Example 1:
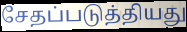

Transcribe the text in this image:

சேதப்படுத்தியது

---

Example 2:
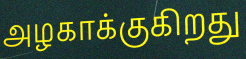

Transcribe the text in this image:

அழகாக்குகிறது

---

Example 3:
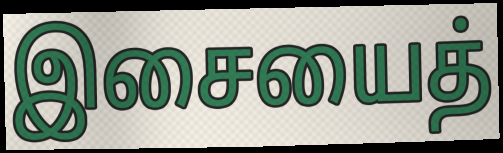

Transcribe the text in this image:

இசையைத்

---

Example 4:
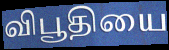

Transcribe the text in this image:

விபூதியை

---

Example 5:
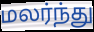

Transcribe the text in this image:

மலர்ந்து